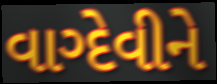
વાગ્દેવીને